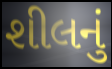
શીલનું